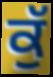
ਕੁੱ